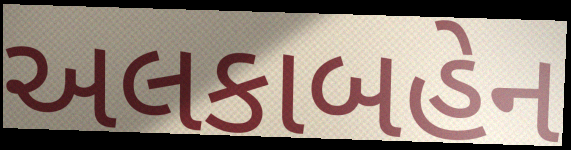
અલકાબહેન